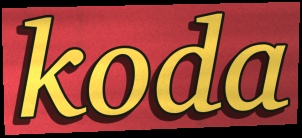
koda